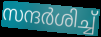
സന്ദർശിച്ച്